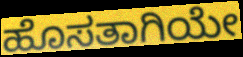
ಹೊಸತಾಗಿಯೇ